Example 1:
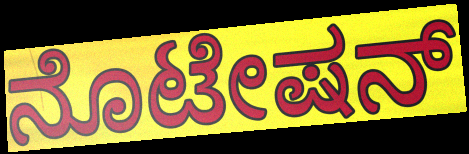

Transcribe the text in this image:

ನೊಟೇಷನ್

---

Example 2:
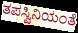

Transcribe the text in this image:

ತಪಸ್ವಿನಿಯಂತೆ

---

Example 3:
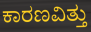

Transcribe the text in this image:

ಕಾರಣವಿತ್ತು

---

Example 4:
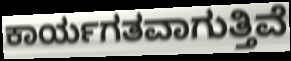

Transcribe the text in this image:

ಕಾರ್ಯಗತವಾಗುತ್ತಿವೆ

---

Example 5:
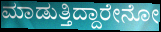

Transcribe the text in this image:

ಮಾಡುತ್ತಿದ್ದಾರೇನೋ